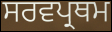
ਸਰਵਪ੍ਰਥਮ